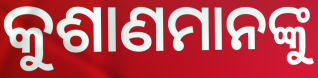
କୁଶାଣମାନଙ୍କୁ